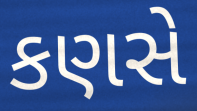
કણસે